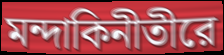
মন্দাকিনীতীরে